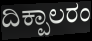
ದಿಕ್ಪಾಲರಂ